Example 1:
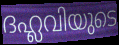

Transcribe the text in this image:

ദഹ്ലവിയുടെ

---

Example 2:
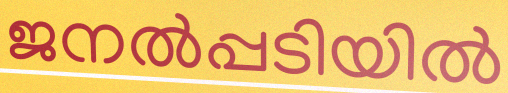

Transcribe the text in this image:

ജനൽപ്പടിയിൽ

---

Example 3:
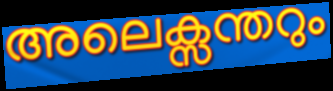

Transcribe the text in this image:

അലെക്സന്തറും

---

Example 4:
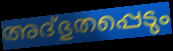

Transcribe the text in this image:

അദ്ഭുതപ്പെടും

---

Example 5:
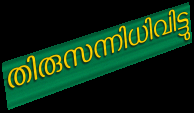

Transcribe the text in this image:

തിരുസന്നിധിവിട്ടു